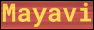
Mayavi